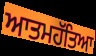
ਆਤਮਹੱਤਿਆ